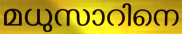
മധുസാറിനെ